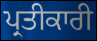
ਪ੍ਰਤੀਕਾਰੀ